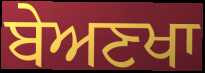
ਬੇਅਣਖਾ